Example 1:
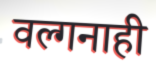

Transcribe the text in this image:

वल्गनाही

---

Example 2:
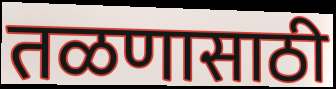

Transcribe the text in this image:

तळणासाठी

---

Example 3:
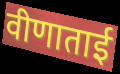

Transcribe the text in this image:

वीणाताई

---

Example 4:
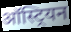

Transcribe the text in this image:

ऑस्ट्रियन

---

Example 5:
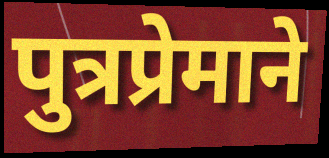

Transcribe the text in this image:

पुत्रप्रेमाने